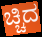
ಚ್ಚಿದ